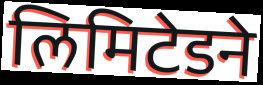
लिमिटेडने